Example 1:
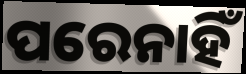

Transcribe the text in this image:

ପରେନାହିଁ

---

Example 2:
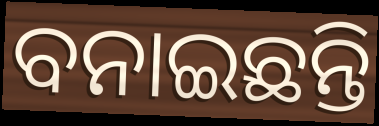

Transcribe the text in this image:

ବନାଇଛନ୍ତି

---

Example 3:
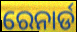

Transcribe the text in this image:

ରେନାର୍ଡ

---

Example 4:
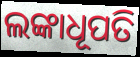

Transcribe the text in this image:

ଲଙ୍କାଧୂପତି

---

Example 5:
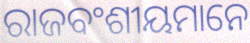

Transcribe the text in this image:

ରାଜବଂଶୀୟମାନେ